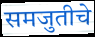
समजुतीचे